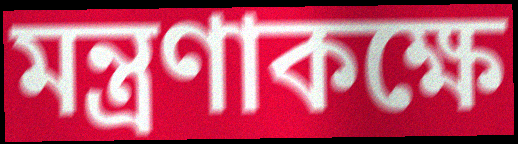
মন্ত্রণাকক্ষে